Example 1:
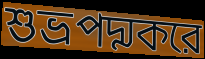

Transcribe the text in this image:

শুভ্রপদ্মকরে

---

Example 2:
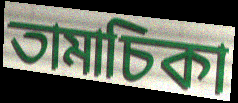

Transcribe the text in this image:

তামাচিকা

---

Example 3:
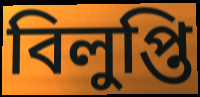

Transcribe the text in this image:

বিলুপ্তি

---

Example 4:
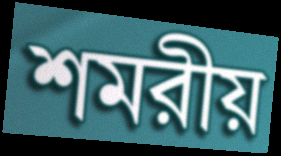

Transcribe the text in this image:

শমরীয়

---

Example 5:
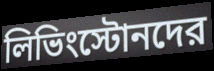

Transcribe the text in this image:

লিভিংস্টোনদের